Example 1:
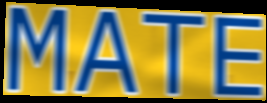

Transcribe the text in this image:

MATE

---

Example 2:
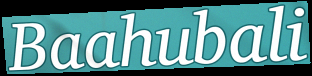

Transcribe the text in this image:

Baahubali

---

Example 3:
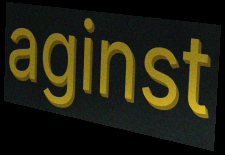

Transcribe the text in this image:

aginst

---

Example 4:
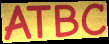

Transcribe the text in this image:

ATBC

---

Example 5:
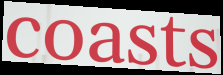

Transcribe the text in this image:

coasts